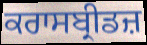
ਕਰਾਸਬ੍ਰੀਡਜ਼